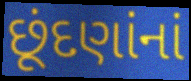
છૂંદણાંનાં